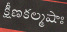
క్షీణకల్మషాః